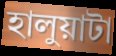
হালুয়াটা